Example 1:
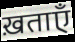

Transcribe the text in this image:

ख़ताएँ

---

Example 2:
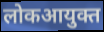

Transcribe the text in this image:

लोकआयुक्त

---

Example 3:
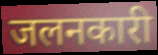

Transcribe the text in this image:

जलनकारी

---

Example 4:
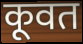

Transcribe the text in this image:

कूवत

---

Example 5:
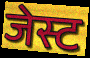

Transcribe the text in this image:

जेस्‍ट